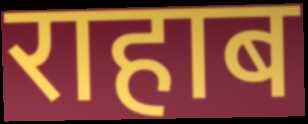
राहाब